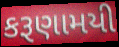
કરૂણામયી